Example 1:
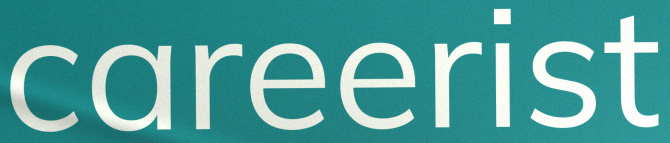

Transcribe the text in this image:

careerist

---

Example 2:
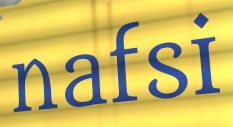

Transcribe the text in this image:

nafsi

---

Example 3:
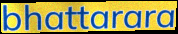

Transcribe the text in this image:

bhattarara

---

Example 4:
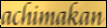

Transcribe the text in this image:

achimakan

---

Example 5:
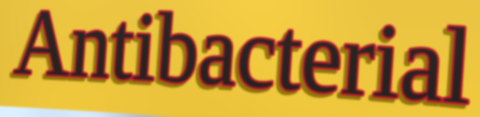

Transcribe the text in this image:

Antibacterial